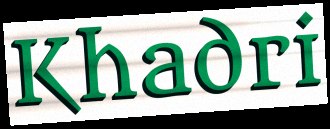
Khadri